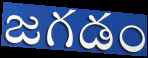
జగడం